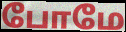
போமே